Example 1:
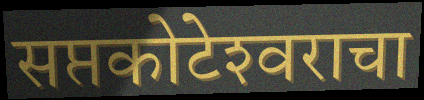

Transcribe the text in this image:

सप्तकोटेश्वराचा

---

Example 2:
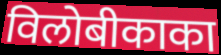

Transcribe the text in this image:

विलोबीकाका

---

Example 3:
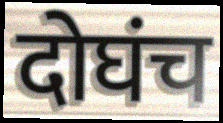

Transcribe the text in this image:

दोघंच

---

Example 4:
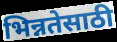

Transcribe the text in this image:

भिन्नतेसाठी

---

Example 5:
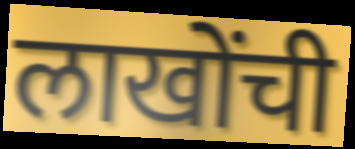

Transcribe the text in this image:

लाखोंची